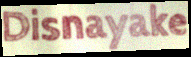
Disnayake